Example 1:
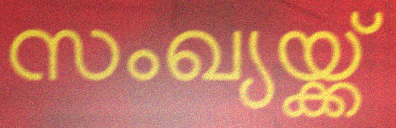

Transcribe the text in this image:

സംഖ്യയ്ക്ക്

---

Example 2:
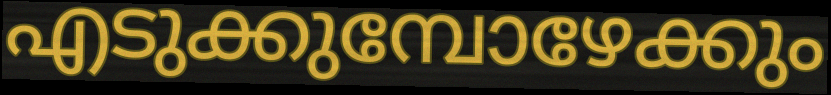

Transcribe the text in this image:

എടുക്കുമ്പോഴേക്കും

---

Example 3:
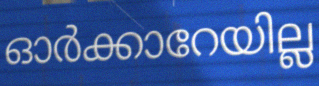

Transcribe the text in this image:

ഓർക്കാറേയില്ല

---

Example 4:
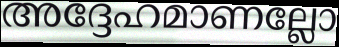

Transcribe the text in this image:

അദ്ദേഹമാണല്ലോ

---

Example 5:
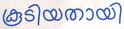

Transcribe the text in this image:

കൂടിയതായി